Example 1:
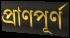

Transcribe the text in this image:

প্রাণপূর্ণ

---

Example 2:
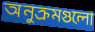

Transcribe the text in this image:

অনুক্রমগুলো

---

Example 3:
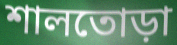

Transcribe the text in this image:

শালতোড়া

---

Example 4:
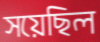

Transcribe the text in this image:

সয়েছিল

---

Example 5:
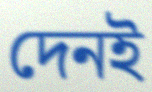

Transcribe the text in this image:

দেনই